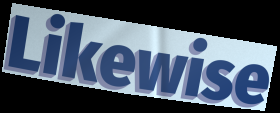
Likewise